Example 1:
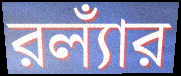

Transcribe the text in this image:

রল্যাঁর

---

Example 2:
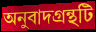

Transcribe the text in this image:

অনুবাদগ্রন্থটি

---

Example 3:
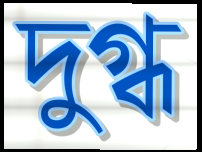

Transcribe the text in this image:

দুগ্ধ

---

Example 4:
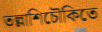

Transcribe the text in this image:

তল্লাশিচৌকিতে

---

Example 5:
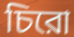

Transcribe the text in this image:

চিরো